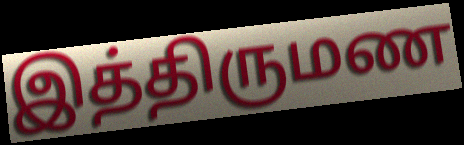
இத்திருமண